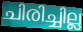
ചിരിച്ചില്ല